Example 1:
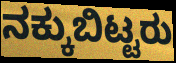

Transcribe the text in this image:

ನಕ್ಕುಬಿಟ್ಟರು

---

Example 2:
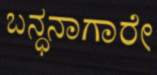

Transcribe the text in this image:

ಬನ್ಧನಾಗಾರೇ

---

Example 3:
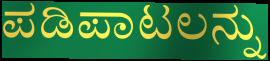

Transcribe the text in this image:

ಪಡಿಪಾಟಲನ್ನು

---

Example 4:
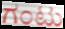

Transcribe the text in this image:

ಗಂಟು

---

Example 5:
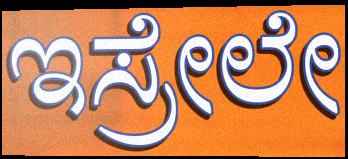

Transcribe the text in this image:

ಇಸ್ರೇಲೇ